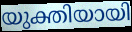
യുക്തിയായി